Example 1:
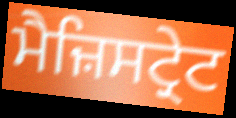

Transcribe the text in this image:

ਮੈਜ਼ਿਸਟ੍ਰੇਟ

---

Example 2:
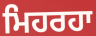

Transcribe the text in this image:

ਮਿਹਰਹਾ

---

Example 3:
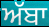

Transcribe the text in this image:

ਅੱਬਾ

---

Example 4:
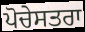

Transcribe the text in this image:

ਪੋਚੇਸਤਰਾ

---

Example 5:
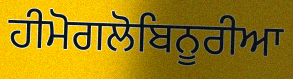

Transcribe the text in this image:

ਹੀਮੋਗਲੋਬਿਨੂਰੀਆ